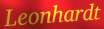
Leonhardt